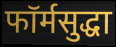
फॉर्मसुद्धा